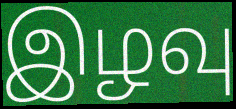
இழவு